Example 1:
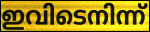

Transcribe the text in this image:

ഇവിടെനിന്ന്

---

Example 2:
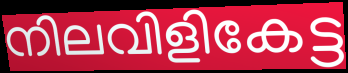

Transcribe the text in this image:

നിലവിളികേട്ട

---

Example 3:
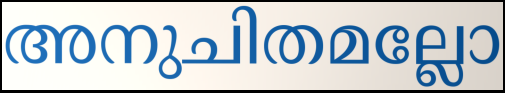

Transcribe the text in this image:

അനുചിതമല്ലോ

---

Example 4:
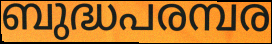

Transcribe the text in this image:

ബുദ്ധപരമ്പര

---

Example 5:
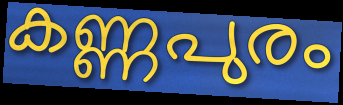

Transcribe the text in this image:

കണ്ണപുരം